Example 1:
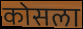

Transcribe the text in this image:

कोसला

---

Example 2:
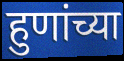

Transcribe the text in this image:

हुणांच्या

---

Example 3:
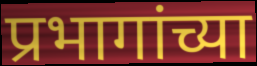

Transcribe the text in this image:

प्रभागांच्या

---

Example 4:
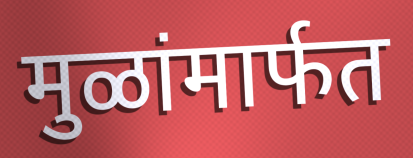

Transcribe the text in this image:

मुळांमार्फत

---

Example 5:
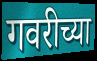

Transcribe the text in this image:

गवरीच्या